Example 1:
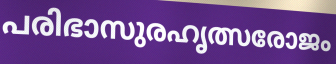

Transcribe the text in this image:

പരിഭാസുരഹൃത്സരോജം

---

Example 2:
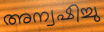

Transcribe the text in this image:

അന്വഷിച്ചു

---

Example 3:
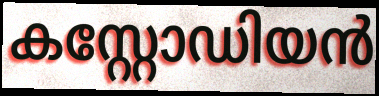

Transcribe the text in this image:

കസ്റ്റോഡിയൻ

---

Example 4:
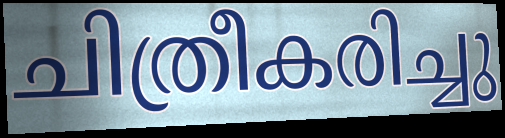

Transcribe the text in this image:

ചിത്രീകരിച്ചു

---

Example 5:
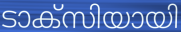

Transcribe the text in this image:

ടാക്സിയായി